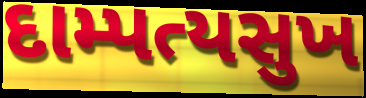
દામ્પત્યસુખ